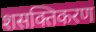
शसक्तिकरण